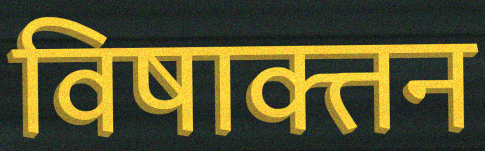
विषाक्तन